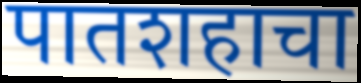
पातशहाचा